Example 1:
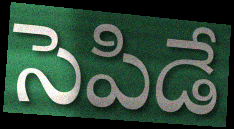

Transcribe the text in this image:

సెపిడే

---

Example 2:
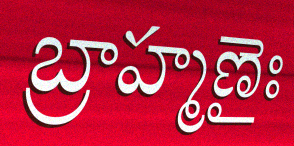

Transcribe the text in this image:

బ్రాహ్మణైః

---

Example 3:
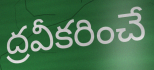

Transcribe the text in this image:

ద్రవీకరించే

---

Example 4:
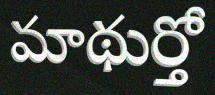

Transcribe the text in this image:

మాథుర్తో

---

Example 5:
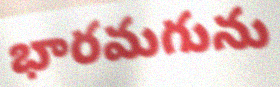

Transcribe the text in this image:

భారమగును